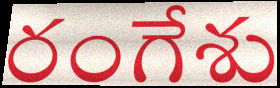
రంగేశు